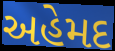
અહેમદ